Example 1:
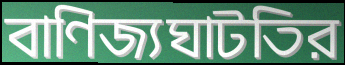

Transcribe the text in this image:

বাণিজ্যঘাটতির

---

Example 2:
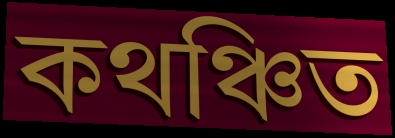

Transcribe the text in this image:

কথঞ্চিত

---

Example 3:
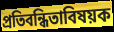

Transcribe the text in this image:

প্রতিবন্ধিতাবিষয়ক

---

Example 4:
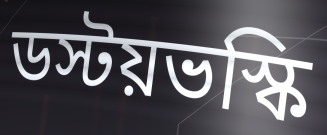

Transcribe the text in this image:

ডস্টয়ভস্কি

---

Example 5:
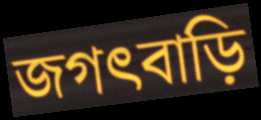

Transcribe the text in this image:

জগৎবাড়ি